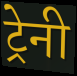
ट्रेनी